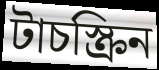
টাচস্ক্রিন